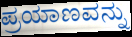
ಪ್ರಯಾಣವನ್ನು